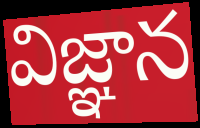
విజ్ఞాన